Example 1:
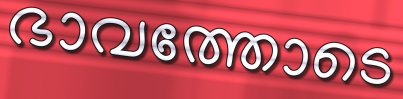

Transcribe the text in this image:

ഭാവത്തോടെ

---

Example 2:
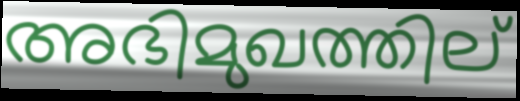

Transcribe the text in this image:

അഭിമുഖത്തില്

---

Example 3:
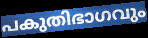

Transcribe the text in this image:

പകുതിഭാഗവും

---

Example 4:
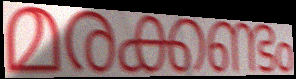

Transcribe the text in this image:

മരക്കണ്ടം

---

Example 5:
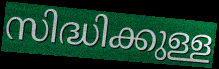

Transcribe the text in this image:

സിദ്ധിക്കുള്ള